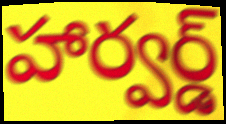
హార్వర్డ్